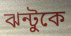
ঝন্টুকে